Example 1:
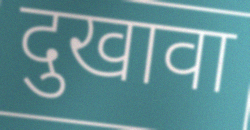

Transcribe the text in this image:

दुखावा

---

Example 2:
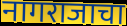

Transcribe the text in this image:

नागराजाचा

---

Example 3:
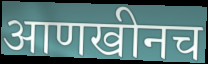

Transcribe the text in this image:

आणखीनच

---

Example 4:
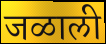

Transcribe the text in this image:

जळाली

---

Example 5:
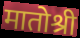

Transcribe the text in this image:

मातोश्री